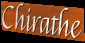
Chirathe